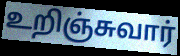
உறிஞ்சுவார்